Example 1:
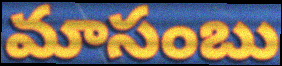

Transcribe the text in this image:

మాసంబు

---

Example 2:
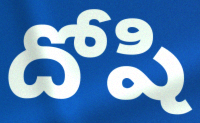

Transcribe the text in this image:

దోషి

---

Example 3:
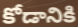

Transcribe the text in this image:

కోడానికి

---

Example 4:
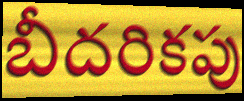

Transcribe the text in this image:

బీదరికపు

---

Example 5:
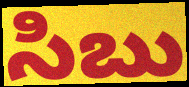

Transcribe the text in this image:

సిబు